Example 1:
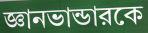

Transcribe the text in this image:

জ্ঞানভান্ডারকে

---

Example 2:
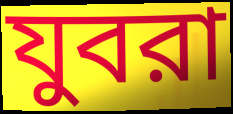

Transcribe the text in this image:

যুবরা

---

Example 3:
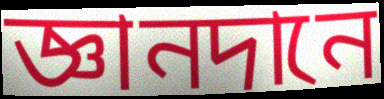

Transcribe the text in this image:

জ্ঞানদানে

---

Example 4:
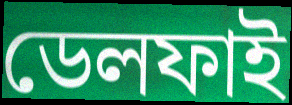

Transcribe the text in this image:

ডেলফাই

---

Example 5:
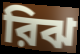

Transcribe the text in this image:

রিঝ